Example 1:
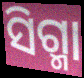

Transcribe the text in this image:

ସିଗ୍ମା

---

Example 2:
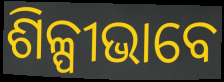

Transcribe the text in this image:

ଶିଳ୍ପୀଭାବେ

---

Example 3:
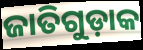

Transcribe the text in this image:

ଜାତିଗୁଡ଼ାକ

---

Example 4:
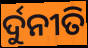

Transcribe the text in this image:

ର୍ଦୁନୀତି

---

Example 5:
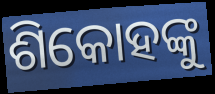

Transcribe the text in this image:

ଶିକୋହଙ୍କୁ